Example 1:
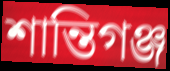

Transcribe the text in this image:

শান্তিগঞ্জ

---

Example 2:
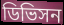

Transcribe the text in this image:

ডিভিসন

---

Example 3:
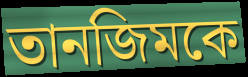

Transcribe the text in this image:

তানজিমকে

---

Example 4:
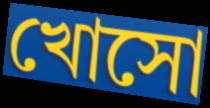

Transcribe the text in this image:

খোসো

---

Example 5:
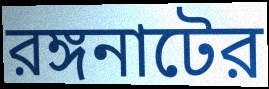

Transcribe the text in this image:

রঙ্গনাটের